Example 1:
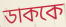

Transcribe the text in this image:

ডাককে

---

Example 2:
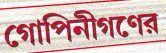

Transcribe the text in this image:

গোপিনীগণের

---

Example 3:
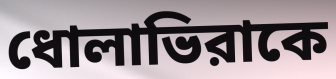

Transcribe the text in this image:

ধোলাভিরাকে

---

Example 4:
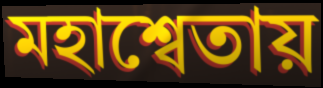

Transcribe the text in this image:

মহাশ্বেতায়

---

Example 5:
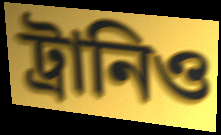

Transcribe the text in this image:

ট্রানিও